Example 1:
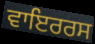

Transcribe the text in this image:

ਵਾਇਰਰਸ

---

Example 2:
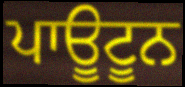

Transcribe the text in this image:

ਪਾਊਟੂਨ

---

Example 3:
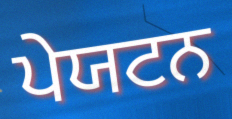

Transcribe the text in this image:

ਪੇਯਟਨ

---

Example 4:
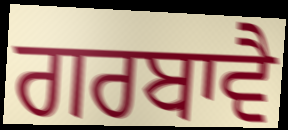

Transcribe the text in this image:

ਗਰਬਾਵੈ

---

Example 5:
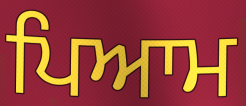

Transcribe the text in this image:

ਪਿਆਮ